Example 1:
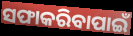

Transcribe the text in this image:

ସଫାକରିବାପାଇଁ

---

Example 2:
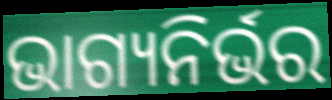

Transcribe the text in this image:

ଭାଗ୍ୟନିର୍ଭର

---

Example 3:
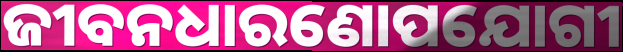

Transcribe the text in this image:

ଜୀବନଧାରଣୋପଯୋଗୀ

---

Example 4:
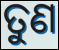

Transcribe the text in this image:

ତୁଣ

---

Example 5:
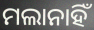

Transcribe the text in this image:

ମଲାନାହିଁ